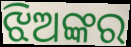
ଝିଅଙ୍କର